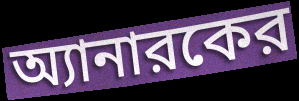
অ্যানারকের